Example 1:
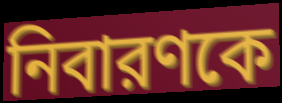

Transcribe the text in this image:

নিবারণকে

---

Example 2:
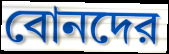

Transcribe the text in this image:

বোনদের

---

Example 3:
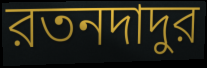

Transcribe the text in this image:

রতনদাদুর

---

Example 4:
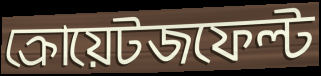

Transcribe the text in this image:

ক্রোয়েটজফেল্ট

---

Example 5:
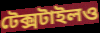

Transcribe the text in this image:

টেক্সটাইলও